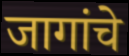
जागांचे